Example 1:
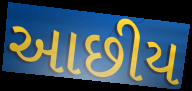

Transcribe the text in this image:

આછીય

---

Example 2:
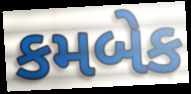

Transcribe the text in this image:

કમબેક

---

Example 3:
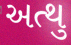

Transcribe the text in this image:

અત્થુ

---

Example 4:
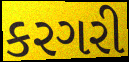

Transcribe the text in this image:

કરગરી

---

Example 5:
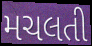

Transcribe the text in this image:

મચલતી